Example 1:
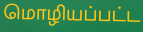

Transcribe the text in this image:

மொழியப்பட்ட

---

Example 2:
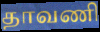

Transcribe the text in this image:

தாவணி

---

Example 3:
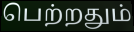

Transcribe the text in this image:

பெற்றதும்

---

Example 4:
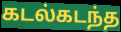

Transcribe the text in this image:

கடல்கடந்த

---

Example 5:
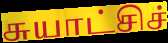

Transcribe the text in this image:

சுயாட்சிச்